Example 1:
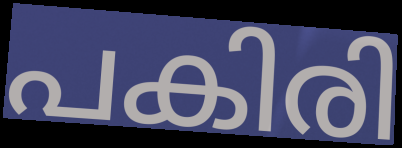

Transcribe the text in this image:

പകിരി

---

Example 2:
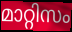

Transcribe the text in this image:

മാറ്റിസം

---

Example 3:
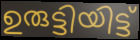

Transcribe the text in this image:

ഉരുട്ടിയിട്ട്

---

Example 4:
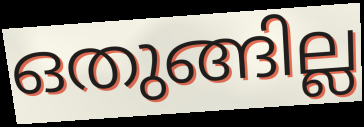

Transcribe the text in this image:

ഒതുങ്ങില്ല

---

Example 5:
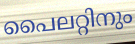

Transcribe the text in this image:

പൈലറ്റിനും